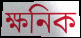
ক্ষনিক